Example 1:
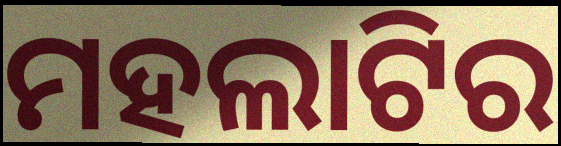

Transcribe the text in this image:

ମହଲାଟିର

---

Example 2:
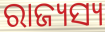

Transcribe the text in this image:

ରାଜ୍ୟସ୍ୟ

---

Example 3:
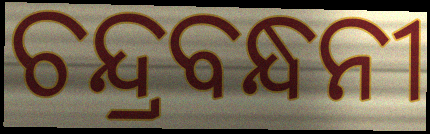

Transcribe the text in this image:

ଚନ୍ଦ୍ରବନ୍ଧନୀ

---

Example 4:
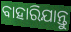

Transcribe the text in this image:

ବାହାରିଯାନ୍ତୁ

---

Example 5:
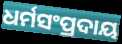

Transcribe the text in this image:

ଧର୍ମସଂପ୍ରଦାୟ